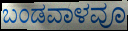
ಬಂಡವಾಳವೂ